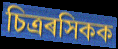
চিত্ৰৰসিকক